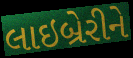
લાઇબ્રેરીને